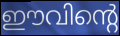
ഈവിന്റെ